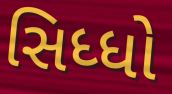
સિધ્ધો